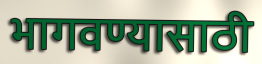
भागवण्यासाठी